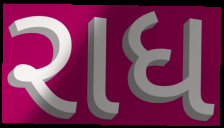
રાધ